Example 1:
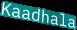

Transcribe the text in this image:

Kaadhala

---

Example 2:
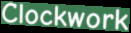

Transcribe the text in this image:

Clockwork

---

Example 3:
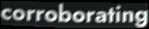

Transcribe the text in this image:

corroborating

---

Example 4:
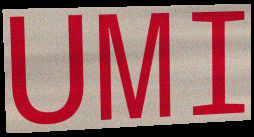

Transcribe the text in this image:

UMI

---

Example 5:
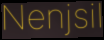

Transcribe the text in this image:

Nenjsil